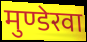
मुण्डेरवा